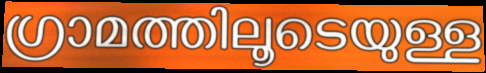
ഗ്രാമത്തിലൂടെയുള്ള